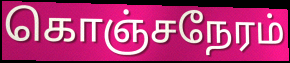
கொஞ்சநேரம்